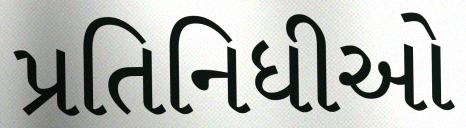
પ્રતિનિધીઓ